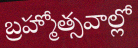
బ్రహ్మోత్సవాల్లో